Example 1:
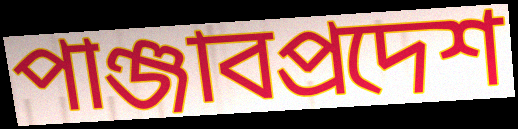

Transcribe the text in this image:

পাঞ্জাবপ্রদেশ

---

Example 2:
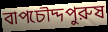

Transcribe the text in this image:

বাপচৌদ্দপুরুষ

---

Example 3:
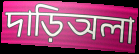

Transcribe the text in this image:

দাড়িঅলা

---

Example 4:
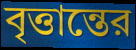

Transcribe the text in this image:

বৃত্তান্তের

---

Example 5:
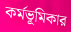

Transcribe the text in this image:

কর্মভূমিকার